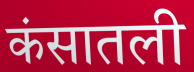
कंसातली